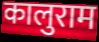
कालुराम